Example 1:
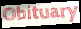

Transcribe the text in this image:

Obituary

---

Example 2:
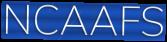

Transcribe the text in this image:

NCAAFS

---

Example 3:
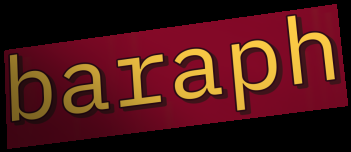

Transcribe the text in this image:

baraph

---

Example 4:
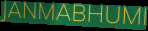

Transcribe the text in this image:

JANMABHUMI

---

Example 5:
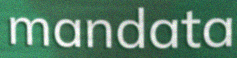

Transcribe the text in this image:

mandata